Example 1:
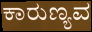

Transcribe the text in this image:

ಕಾರುಣ್ಯವ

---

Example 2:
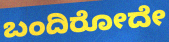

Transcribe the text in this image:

ಬಂದಿರೋದೇ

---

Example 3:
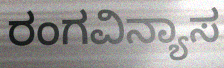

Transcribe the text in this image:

ರಂಗವಿನ್ಯಾಸ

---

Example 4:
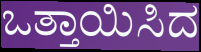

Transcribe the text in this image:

ಒತ್ತಾಯಿಸಿದ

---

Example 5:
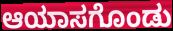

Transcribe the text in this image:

ಆಯಾಸಗೊಂಡು